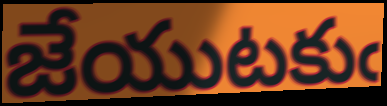
జేయుటకుఁ